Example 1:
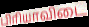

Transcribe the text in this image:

பிரியாவிடை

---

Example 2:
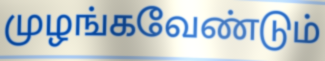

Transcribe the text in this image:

முழங்கவேண்டும்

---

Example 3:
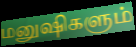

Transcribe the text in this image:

மனுஷிகளும்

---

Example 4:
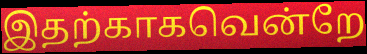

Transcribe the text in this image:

இதற்காகவென்றே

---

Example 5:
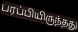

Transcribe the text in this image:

பரப்பியிருந்தது